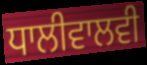
ਧਾਲੀਵਾਲਵੀ